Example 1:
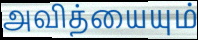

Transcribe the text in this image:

அவித்யையும்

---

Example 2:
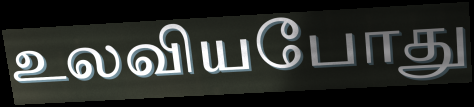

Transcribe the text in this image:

உலவியபோது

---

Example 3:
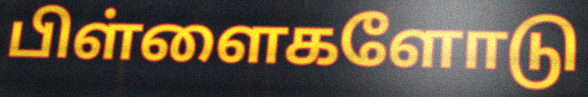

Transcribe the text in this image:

பிள்ளைகளோடு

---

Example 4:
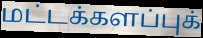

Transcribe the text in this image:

மட்டக்களப்புக்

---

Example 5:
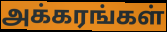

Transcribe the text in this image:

அக்கரங்கள்